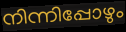
നിന്നിപ്പോഴും